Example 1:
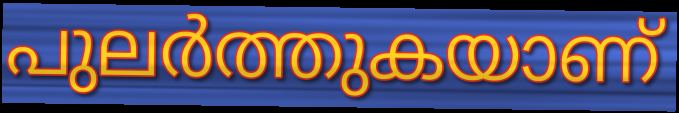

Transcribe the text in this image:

പുലർത്തുകയാണ്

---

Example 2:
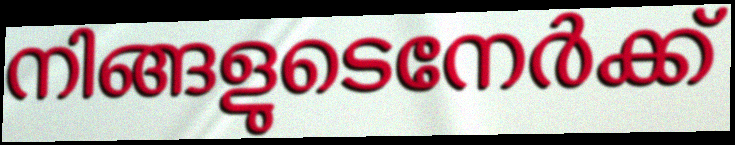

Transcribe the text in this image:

നിങ്ങളുടെനേർക്ക്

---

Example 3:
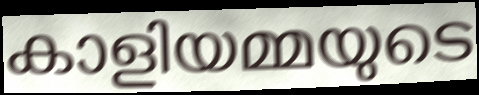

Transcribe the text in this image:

കാളിയമ്മയുടെ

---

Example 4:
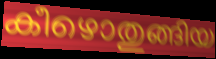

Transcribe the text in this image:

കീഴൊതുങ്ങിയ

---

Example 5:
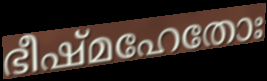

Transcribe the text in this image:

ഭീഷ്മഹേതോഃ